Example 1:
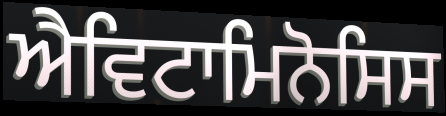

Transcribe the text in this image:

ਐਵਿਟਾਮਿਨੋਸਿਸ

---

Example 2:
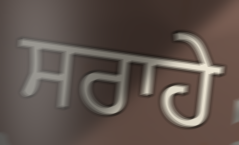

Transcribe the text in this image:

ਸਰਾਹੇ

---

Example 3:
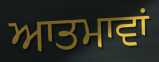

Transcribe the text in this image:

ਆਤਮਾਵਾਂ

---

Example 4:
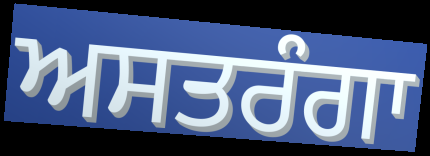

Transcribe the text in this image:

ਅਸਤਰੰਗਾ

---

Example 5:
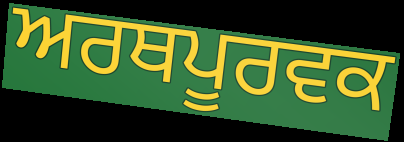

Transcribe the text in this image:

ਅਰਥਪੂਰਵਕ